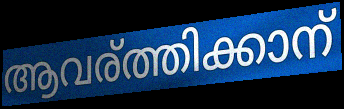
ആവര്ത്തിക്കാന്